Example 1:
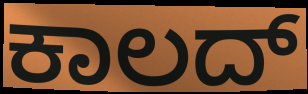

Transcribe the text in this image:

ಕಾಲದ್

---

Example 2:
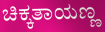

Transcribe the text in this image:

ಚಿಕ್ಕತಾಯಣ್ಣ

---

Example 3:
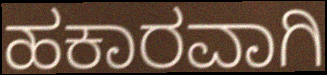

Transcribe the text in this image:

ಹಕಾರವಾಗಿ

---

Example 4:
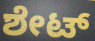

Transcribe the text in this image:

ಶೇಟ್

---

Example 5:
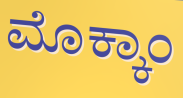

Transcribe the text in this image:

ಮೊಕ್ಕಾಂ